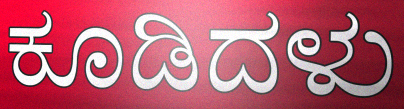
ಕೂಡಿದಳು